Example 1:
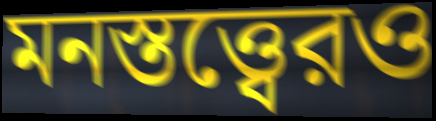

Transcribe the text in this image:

মনস্তত্ত্বেরও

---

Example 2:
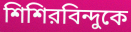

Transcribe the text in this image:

শিশিরবিন্দুকে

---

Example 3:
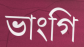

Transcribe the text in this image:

ভাংগি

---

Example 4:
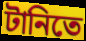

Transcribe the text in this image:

টানিতে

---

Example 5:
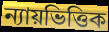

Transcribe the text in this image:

ন্যায়ভিত্তিক